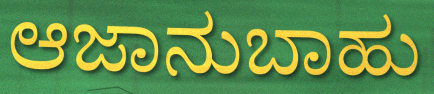
ಆಜಾನುಬಾಹು